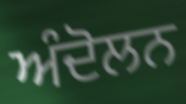
ਅੰਦੋਲਨ